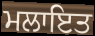
ਮਲਾਇਤ